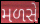
મળસે